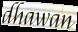
dhawan